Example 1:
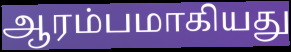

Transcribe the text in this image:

ஆரம்பமாகியது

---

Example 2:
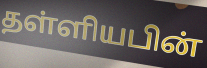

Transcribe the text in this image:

தள்ளியபின்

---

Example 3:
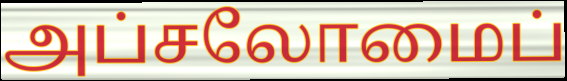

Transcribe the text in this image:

அப்சலோமைப்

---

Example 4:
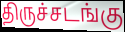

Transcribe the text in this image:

திருச்சடங்கு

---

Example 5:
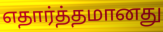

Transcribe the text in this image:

எதார்த்தமானது